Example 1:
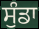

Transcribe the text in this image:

ਸੁੰਡਾ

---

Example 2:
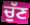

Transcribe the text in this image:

ਚੁੱਣ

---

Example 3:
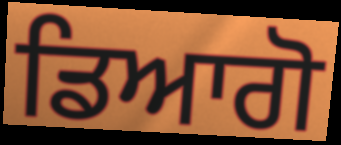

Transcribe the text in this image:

ਡਿਆਗੋ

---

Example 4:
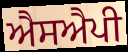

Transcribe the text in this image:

ਐਸਐਪੀ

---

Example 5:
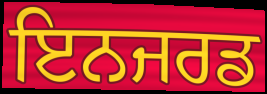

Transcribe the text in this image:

ਇਨਜਰਡ